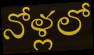
నోళ్లలో